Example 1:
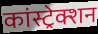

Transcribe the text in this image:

कांस्ट्रेक्शन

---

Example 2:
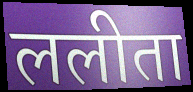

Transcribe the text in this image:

ललीता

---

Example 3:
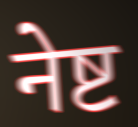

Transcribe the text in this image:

नेष्ट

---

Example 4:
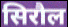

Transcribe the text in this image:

सिरौल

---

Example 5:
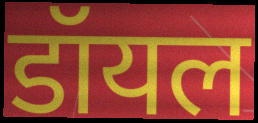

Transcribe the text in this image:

डॉयल